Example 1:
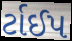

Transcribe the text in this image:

ર્ટાઈપ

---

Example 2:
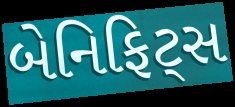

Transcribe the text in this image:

બેનિફિટ્સ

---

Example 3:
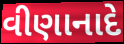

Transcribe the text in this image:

વીણાનાદે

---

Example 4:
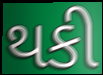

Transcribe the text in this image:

થકી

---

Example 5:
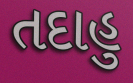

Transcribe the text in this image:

તદાહુ